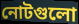
নোটগুলো